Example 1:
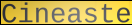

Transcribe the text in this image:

Cineaste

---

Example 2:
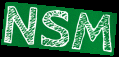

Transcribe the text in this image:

NSM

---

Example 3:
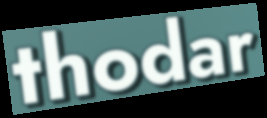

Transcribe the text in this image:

thodar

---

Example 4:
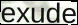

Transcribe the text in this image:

exude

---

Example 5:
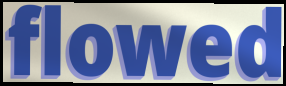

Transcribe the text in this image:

flowed